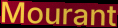
Mourant